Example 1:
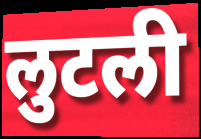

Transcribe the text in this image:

लुटली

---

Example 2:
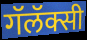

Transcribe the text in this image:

गॅलॅक्सी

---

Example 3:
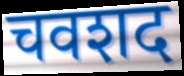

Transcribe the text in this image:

चवशद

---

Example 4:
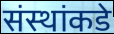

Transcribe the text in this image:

संस्थांकडे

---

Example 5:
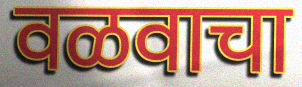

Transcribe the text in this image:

वळवाचा